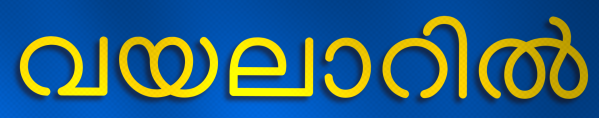
വയലാറിൽ